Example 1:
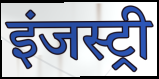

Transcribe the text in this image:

इंजस्ट्री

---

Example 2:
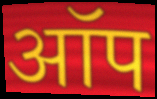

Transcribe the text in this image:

ऑप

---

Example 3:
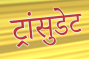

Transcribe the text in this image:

ट्रांसुडेट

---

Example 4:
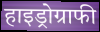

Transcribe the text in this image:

हाइड्रोग्राफी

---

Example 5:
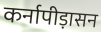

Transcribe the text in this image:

कर्नापीड़ासन